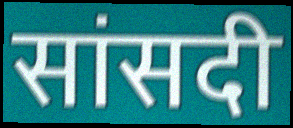
सांसदी